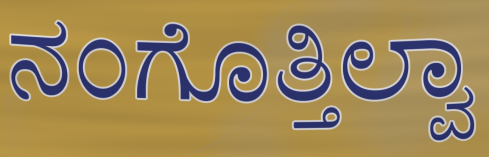
ನಂಗೊತ್ತಿಲ್ವಾ